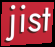
jist